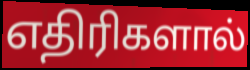
எதிரிகளால்